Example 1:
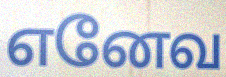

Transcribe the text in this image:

எனேவ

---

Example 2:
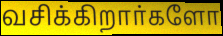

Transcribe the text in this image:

வசிக்கிறார்களோ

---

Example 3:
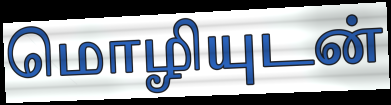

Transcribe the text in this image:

மொழியுடன்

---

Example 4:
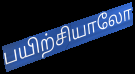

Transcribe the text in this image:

பயிற்சியாலோ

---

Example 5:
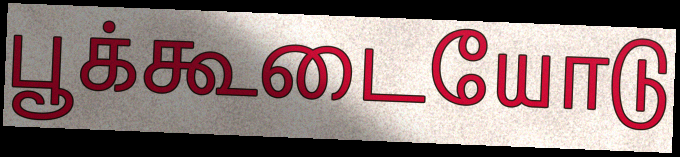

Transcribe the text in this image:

பூக்கூடையோடு